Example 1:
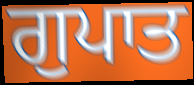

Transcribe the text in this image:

ਗੁਪਾਤ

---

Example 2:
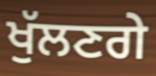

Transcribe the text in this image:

ਖੁੱਲਣਗੇ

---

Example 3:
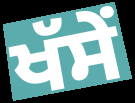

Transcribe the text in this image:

ਖੱਸੇਂ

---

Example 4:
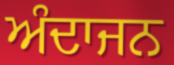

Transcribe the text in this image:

ਅੰਦਾਜਨ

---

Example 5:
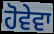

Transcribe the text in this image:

ਹੋਵੇਵਾ